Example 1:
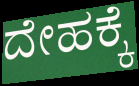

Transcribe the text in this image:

ದೇಹಕ್ಕೆ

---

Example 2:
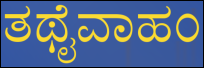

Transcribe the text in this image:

ತಥೈವಾಹಂ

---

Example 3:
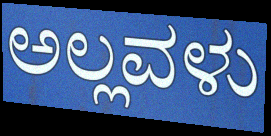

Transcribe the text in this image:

ಅಲ್ಲವಳು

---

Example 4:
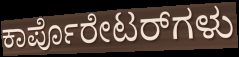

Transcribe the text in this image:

ಕಾರ್ಪೊರೇಟರ್‌ಗಳು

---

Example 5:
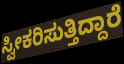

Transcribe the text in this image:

ಸ್ವೀಕರಿಸುತ್ತಿದ್ದಾರೆ